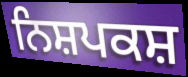
ਨਿਸ਼ਪਕਸ਼